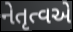
નેતૃત્વએ